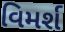
વિમર્શ